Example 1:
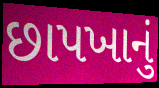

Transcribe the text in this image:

છાપખાનું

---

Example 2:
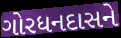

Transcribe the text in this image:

ગોરધનદાસને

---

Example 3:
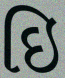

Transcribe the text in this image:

ઇિ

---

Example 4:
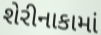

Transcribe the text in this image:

શેરીનાકામાં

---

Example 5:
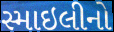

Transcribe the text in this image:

સ્માઇલીનો